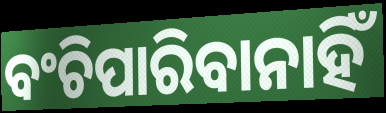
ବଂଚିପାରିବାନାହିଁ